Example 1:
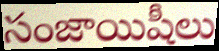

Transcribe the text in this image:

సంజాయిషీలు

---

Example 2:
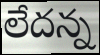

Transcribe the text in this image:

లేదన్న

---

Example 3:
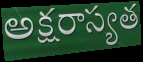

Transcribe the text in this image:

అక్షరాస్యత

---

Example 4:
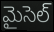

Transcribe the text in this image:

మైసెల్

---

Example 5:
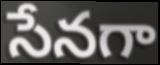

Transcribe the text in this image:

సేనగా